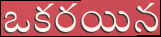
ఒకరయిన